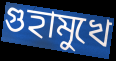
গুহামুখে